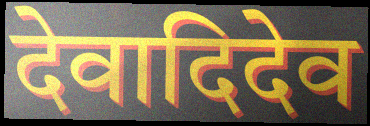
देवादिदेव